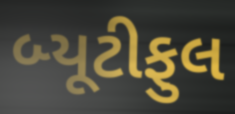
બ્યૂટીફુલ